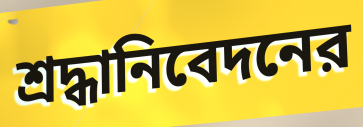
শ্রদ্ধানিবেদনের